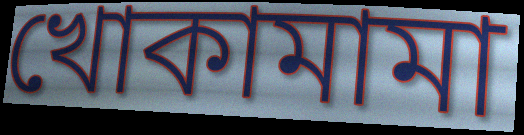
খোকামামা